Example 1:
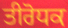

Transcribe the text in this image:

ਤੀਰੋਧਕ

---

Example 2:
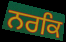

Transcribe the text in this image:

ਨਰਕਿ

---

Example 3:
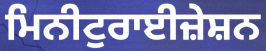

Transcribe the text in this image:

ਮਿਨੀਟੁਰਾਈਜ਼ੇਸ਼ਨ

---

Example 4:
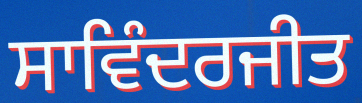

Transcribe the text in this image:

ਸਾਵਿੰਦਰਜੀਤ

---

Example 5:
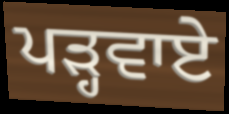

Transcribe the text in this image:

ਪੜ੍ਹਵਾਏ